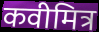
कवीमित्र